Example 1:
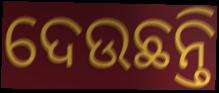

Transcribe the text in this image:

ଦେଉଛନ୍ତି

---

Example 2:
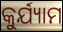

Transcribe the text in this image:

କୁର୍ଯ୍ୟାମ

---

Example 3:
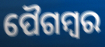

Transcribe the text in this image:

ପୈଗମ୍ବର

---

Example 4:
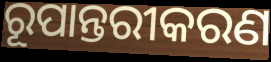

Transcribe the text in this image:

ରୂପାନ୍ତରୀକରଣ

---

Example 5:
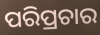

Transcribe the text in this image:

ପରିପ୍ରଚାର